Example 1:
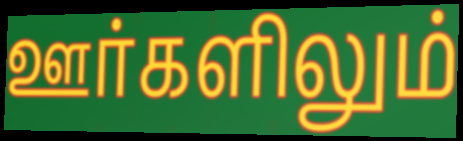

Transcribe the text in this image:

ஊர்களிலும்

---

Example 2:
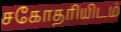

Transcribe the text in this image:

சகோதரியிடம்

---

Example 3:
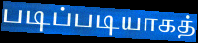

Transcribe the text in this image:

படிப்படியாகத்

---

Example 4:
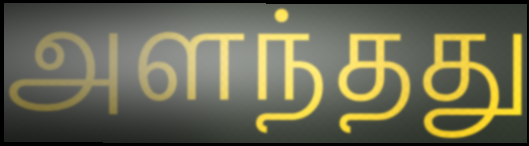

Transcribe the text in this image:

அளந்தது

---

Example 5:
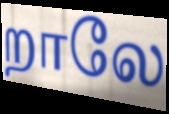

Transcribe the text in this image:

றாலே